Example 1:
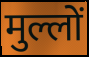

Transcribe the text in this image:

मुल्लों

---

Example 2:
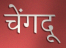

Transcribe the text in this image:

चेंगदू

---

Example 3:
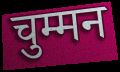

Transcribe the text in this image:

चुम्मन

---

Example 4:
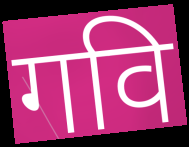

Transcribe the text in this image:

गवि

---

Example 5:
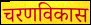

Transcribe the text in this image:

चरणविकास